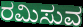
ರಮಿಸುವ